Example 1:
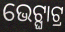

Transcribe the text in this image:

ଭେଟ୍ଘାଟ୍ର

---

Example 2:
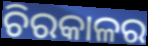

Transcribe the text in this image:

ଚିରକାଳର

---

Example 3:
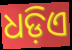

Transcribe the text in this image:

ଧଡ଼ିଏ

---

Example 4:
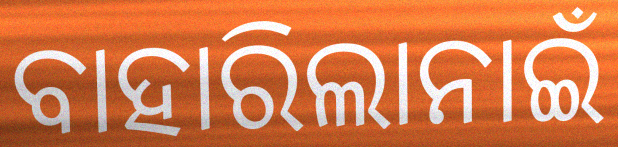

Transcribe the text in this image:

ବାହାରିଲାନାଇଁ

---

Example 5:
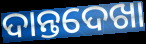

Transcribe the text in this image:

ଦାନ୍ତଦେଖା